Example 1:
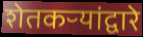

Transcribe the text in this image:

शेतकऱ्यांद्वारे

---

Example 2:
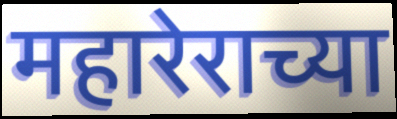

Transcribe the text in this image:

महारेराच्या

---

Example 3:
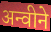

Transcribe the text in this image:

अन्वीने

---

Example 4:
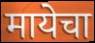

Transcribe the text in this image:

मायेचा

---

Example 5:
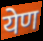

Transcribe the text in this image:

येण